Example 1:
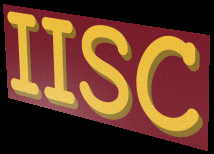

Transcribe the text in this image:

IISC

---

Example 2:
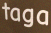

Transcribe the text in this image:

taga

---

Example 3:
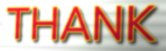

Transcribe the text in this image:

THANK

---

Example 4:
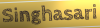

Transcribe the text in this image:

Singhasari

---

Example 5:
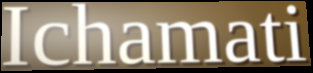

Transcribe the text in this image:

Ichamati